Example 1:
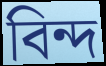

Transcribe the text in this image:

বিন্দ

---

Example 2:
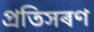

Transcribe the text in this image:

প্ৰতিসৰণ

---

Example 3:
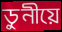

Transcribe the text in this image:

ডুনীয়ে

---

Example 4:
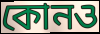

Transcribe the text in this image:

কোনও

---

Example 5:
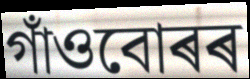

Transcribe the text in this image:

গাঁওবোৰৰ